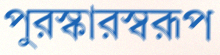
পুরস্কারস্বরূপ